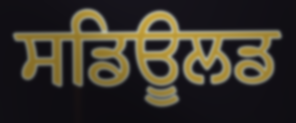
ਸਡਿਊਲਡ